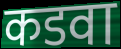
कडवा